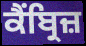
ਕੈਂਬ੍ਰਿਜ਼